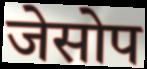
जेसोप